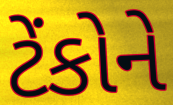
ટેંકોને